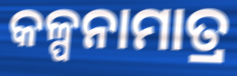
କଳ୍ପନାମାତ୍ର